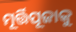
ମୂର୍ତ୍ତିପୂଜାକୁ